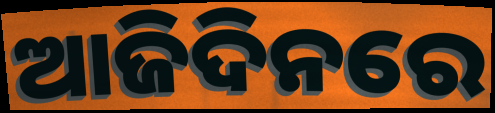
ଆଜିଦିନରେ